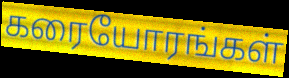
கரையோரங்கள்